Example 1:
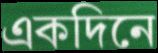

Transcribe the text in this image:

একদিনে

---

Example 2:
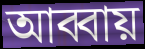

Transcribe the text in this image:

আব্বায়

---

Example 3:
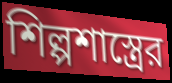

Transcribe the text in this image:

শিল্পশাস্ত্রের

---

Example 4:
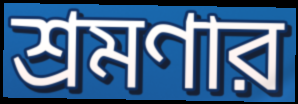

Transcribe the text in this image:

শ্রমণার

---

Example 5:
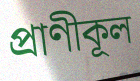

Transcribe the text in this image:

প্রাণীকূল